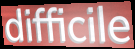
difficile